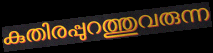
കുതിരപ്പുറത്തുവരുന്ന